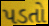
પડતો